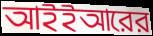
আইইআরের